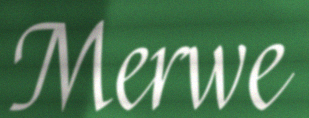
Merwe